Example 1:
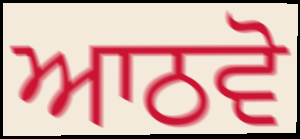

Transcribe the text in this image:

ਆਠਵੋ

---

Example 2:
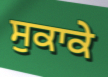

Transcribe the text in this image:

ਸੁਕਾਕੇ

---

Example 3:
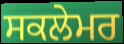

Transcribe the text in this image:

ਸਕਲੇਮਰ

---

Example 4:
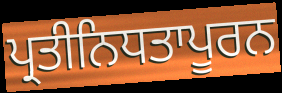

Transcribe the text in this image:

ਪ੍ਰਤੀਨਿਧਤਾਪੂਰਨ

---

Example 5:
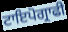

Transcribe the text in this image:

ਟਾਇਪੋਗ੍ਰਾਫੀ